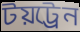
টয়ট্রেন